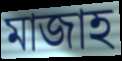
মাজাহ